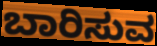
ಬಾರಿಸುವ